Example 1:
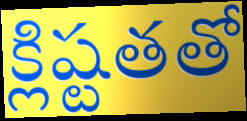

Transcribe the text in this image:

క్లిష్టతతో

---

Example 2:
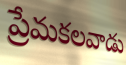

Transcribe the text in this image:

ప్రేమకలవాడు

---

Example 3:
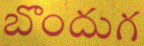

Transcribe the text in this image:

బొందుగ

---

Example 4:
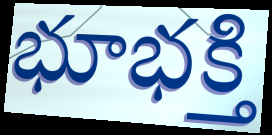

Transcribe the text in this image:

భూభక్తి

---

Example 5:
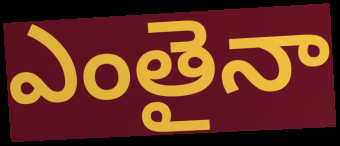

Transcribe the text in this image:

ఎంతైనా